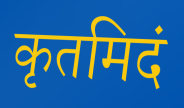
कृतमिदं